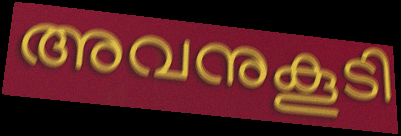
അവനുകൂടി